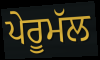
ਪੇਰੂਮੱਲ